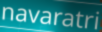
navaratri